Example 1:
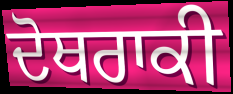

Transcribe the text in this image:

ਦੋਥਰਾਕੀ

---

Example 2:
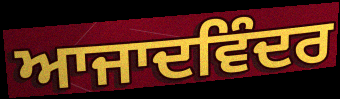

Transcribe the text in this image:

ਆਜਾਦਵਿੰਦਰ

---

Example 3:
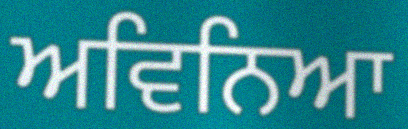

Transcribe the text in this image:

ਅਵਿਨਿਆ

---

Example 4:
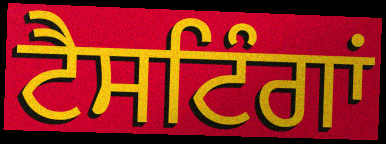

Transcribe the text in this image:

ਟੈਸਟਿੰਗਾਂ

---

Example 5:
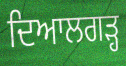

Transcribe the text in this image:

ਦਿਆਲਗੜ੍ਹ